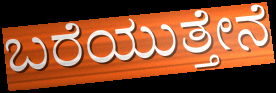
ಬರೆಯುತ್ತೇನೆ